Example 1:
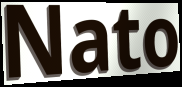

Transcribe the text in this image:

Nato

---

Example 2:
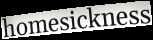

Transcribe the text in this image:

homesickness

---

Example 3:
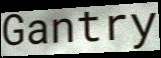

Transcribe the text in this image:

Gantry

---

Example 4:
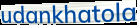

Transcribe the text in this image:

udankhatola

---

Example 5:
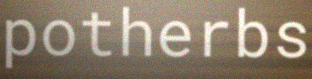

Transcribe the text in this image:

potherbs